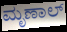
ಮೃಣಾಲ್